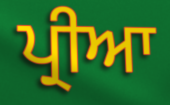
ਪ੍ਰੀਆ